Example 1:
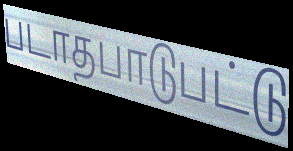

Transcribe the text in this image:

படாதபாடுபட்டு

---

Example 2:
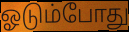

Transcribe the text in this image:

ஓடும்போது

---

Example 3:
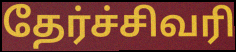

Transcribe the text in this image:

தேர்ச்சிவரி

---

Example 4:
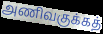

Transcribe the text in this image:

அணிவகுக்கத்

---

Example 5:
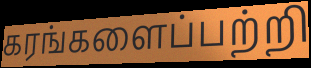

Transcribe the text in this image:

கரங்களைப்பற்றி